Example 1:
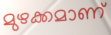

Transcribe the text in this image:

മുഴക്കമാണ്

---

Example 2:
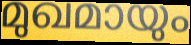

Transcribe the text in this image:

മുഖമായും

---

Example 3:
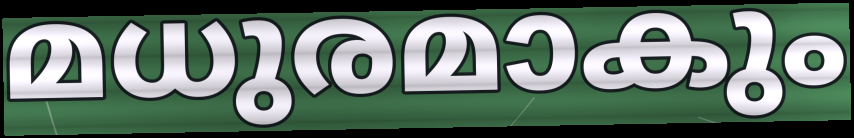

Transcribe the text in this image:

മധുരമാകും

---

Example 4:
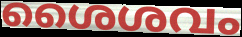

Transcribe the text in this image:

ശൈശവം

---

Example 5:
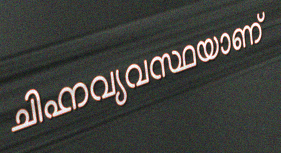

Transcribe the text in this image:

ചിഹ്നവ്യവസ്ഥയാണ്